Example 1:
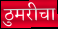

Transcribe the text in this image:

ठुमरीचा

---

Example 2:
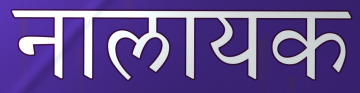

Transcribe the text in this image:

नालायक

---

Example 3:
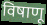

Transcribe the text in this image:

विषाणू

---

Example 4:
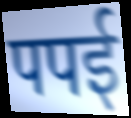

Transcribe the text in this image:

पपई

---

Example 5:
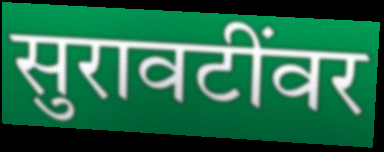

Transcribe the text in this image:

सुरावटींवर